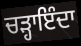
ਚੜ੍ਹਾਇੰਦਾ